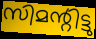
സിമന്റിട്ടു